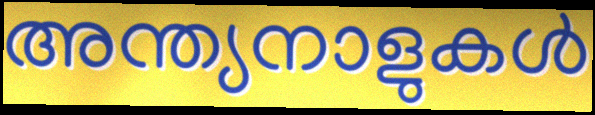
അന്ത്യനാളുകൾ